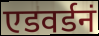
एडवर्डनं